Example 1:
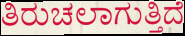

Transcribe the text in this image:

ತಿರುಚಲಾಗುತ್ತಿದೆ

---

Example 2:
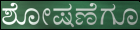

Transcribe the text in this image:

ಶೋಷಣೆಗೂ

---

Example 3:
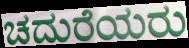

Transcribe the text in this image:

ಚದುರೆಯರು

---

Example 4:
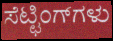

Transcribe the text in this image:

ಸೆಟ್ಟಿಂಗ್‌ಗಳು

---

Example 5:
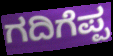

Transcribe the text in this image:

ಗದಿಗೆಪ್ಪ